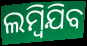
ଲମ୍ୱିଯିବ